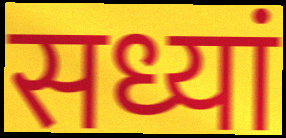
सध्यां